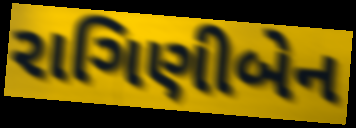
રાગિણીબેન